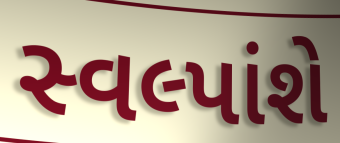
સ્વલ્પાંશે